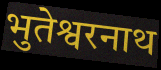
भुतेश्वरनाथ